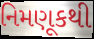
નિમણૂકથી